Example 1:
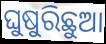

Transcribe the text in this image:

ଘୁଷୁରିଛୁଆ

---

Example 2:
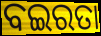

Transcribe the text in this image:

ବଇରତା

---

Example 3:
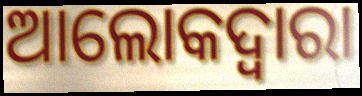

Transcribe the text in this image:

ଆଲୋକଦ୍ୱାରା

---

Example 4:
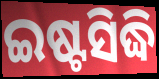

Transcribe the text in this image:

ଇଷ୍ଟସିଦ୍ଧି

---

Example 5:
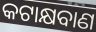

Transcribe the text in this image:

କଟାକ୍ଷବାଣ